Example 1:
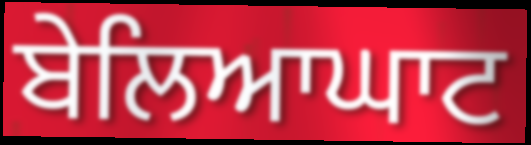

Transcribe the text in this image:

ਬੇਲਿਆਘਾਟ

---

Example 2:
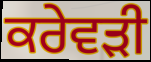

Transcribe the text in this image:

ਕਰੇਵੜੀ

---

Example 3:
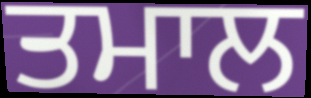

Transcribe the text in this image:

ਤਮਾਲ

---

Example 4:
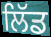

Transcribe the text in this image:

ਲਿੱਡ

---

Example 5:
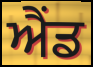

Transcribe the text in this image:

ਐੰਡ